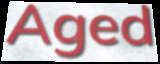
Aged